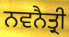
ਨਵਨੈਤ੍ਰੀ